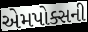
એમપોક્સની